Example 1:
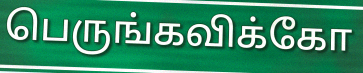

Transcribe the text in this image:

பெருங்கவிக்கோ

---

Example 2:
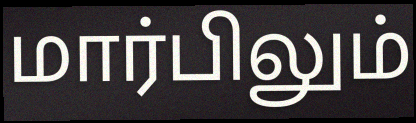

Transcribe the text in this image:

மார்பிலும்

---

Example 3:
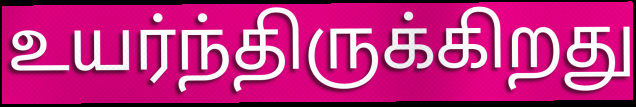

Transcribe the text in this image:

உயர்ந்திருக்கிறது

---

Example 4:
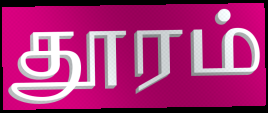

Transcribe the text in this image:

தூரம்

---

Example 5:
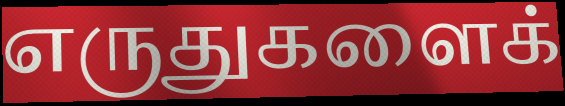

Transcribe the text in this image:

எருதுகளைக்